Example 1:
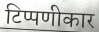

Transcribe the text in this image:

टिप्पणीकार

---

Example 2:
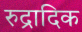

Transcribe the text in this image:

रुद्रादिक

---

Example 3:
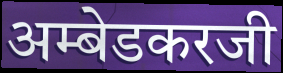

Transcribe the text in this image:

अम्बेडकरजी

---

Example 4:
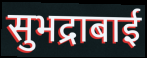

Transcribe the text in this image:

सुभद्राबाई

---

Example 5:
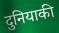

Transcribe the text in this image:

दुनियाकी